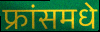
फ्रांसमधे